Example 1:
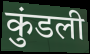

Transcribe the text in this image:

कुंडली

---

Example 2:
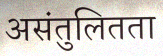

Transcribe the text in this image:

असंतुलितता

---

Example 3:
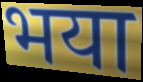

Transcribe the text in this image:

भया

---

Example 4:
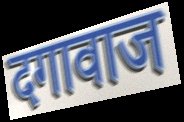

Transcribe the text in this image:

दगावाज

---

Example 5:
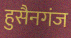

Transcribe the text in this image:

हुसैनगंज